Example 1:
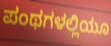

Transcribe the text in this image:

ಪಂಥಗಳಲ್ಲಿಯೂ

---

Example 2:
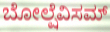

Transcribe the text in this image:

ಬೋಲ್ಷೆವಿಸಮ್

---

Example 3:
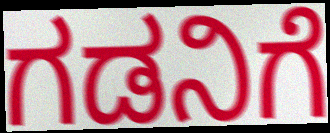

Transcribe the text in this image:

ಗಡನಿಗೆ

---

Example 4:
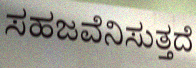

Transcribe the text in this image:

ಸಹಜವೆನಿಸುತ್ತದೆ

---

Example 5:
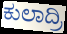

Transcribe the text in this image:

ಕುಲಾದ್ರಿ